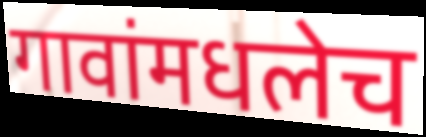
गावांमधलेच